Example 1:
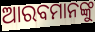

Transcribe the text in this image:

ଆରବମାନଙ୍କୁ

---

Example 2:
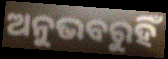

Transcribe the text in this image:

ଅନୁଭବରୁହିଁ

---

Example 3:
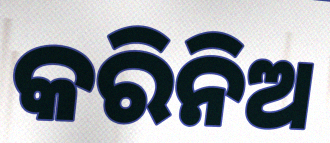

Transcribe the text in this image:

କରିନିଅ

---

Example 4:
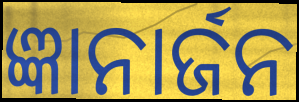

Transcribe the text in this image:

ଜ୍ଞାନାର୍ଜନ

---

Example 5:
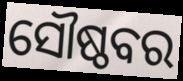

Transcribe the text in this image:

ସୌଷ୍ଠବର